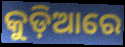
କୁଡ଼ିଆରେ